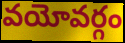
వయోవర్గం